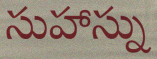
సుహాస్ను